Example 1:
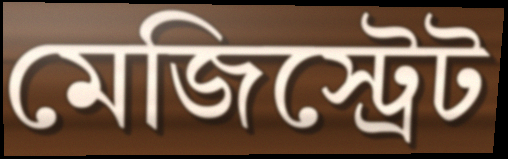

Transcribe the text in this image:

মেজিস্ট্রেট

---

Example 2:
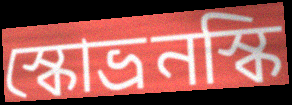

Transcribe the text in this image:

স্কোভ্রনস্কি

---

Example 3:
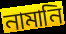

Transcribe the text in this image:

নামানি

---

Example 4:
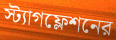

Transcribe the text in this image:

স্ট্যাগফ্লেশনের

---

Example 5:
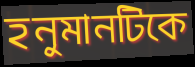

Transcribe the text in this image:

হনুমানটিকে